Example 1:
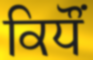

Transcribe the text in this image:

ਕਿਧੌਂ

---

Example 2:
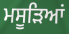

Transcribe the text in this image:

ਮਸੂੜਿਆਂ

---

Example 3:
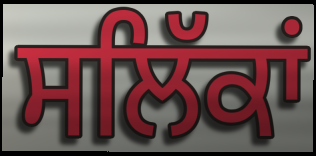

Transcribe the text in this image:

ਸਲਿੱਕਾਂ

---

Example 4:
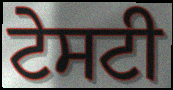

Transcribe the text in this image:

ਟੇਸਟੀ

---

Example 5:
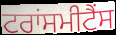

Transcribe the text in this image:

ਟਰਾਂਸਮੀਟੈਂਸ